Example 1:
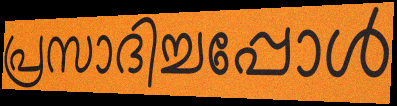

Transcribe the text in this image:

പ്രസാദിച്ചപ്പോൾ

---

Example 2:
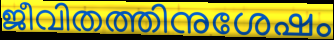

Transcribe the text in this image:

ജീവിതത്തിനുശേഷം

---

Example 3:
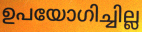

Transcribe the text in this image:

ഉപയോഗിച്ചില്ല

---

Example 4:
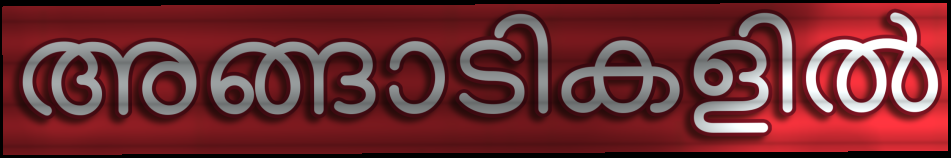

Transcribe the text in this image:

അങ്ങാടികളിൽ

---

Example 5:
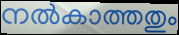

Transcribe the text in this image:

നൽകാത്തതും